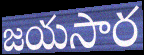
జయసార